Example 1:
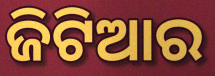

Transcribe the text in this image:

ଜିଟିଆର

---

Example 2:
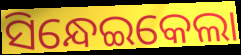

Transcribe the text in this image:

ସିନ୍ଧେଇକେଲା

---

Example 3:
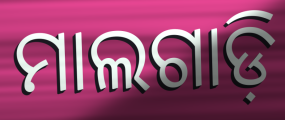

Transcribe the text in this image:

ମାଲଗାଡ଼ି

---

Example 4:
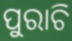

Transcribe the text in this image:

ପୁରାଚି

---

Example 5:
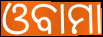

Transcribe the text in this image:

ଓବାମା